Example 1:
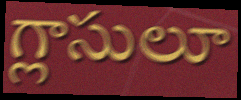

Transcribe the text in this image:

గ్లాసులూ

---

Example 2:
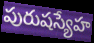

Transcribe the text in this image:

పురుషస్యేహ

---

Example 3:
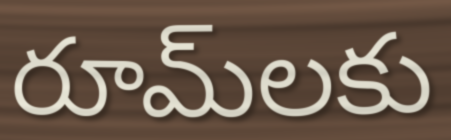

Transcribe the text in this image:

రూమ్‌లకు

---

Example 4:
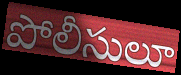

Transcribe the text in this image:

పోలీసులూ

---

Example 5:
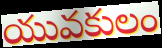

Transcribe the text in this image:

యువకులం